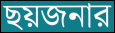
ছয়জনার